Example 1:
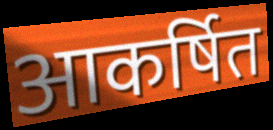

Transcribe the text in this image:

आकर्षित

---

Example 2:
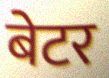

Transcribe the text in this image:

बेटर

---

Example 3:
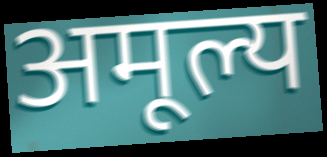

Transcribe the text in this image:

अमूल्‍य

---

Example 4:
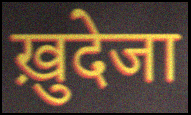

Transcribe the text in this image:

ख़ुदेजा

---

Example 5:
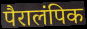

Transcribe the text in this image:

पैरालंपिक